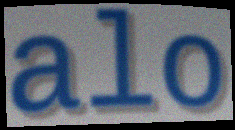
alo